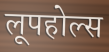
लूपहोल्स